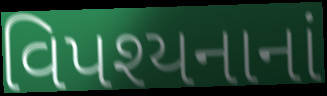
વિપશ્યનાનાં